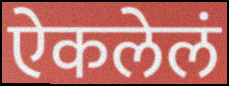
ऐकलेलं